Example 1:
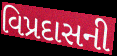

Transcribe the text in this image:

વિપ્રદાસની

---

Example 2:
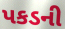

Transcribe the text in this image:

પકડની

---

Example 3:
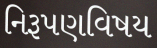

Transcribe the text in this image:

નિરૂપણવિષય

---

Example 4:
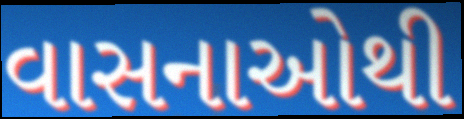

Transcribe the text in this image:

વાસનાઓથી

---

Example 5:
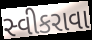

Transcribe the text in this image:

સ્વીકરાવા